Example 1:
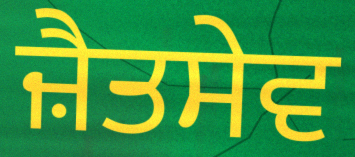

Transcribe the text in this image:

ਜ਼ੈਤਸੇਵ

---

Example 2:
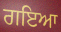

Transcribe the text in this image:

ਗਇਆ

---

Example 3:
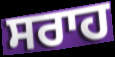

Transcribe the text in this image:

ਸਰਾਹ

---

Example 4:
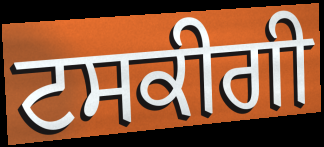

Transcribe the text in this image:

ਟਸਕੀਗੀ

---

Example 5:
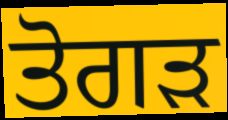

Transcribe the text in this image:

ਤੋਗੜ